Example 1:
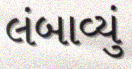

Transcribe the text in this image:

લંબાવ્યું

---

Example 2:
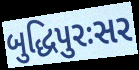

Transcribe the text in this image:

બુદ્ધિપુરઃસર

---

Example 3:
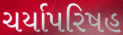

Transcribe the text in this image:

ચર્યાપરિષહ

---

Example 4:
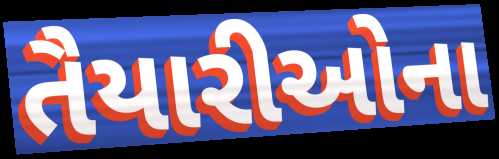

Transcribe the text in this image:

તૈયારીઓના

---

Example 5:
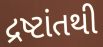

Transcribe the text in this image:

દ્રષ્ટાંતથી